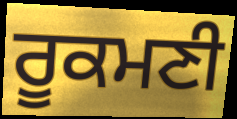
ਰੂਕਮਣੀ